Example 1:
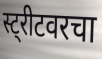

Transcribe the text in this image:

स्ट्रीटवरचा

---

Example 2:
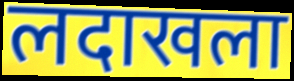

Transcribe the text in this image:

लदाखला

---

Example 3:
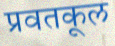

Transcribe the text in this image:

प्रवतकूल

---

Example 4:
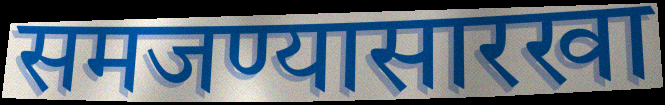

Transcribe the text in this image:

समजण्यासारखा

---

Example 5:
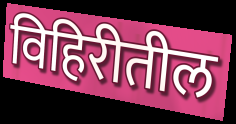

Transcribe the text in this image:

विहिरीतील